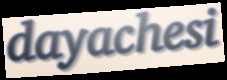
dayachesi